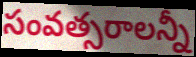
సంవత్సరాలన్నీ